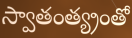
స్వాతంత్య్రంతో